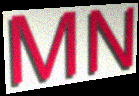
MN